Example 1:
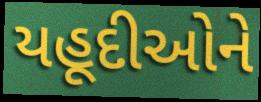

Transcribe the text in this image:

યહૂદીઓને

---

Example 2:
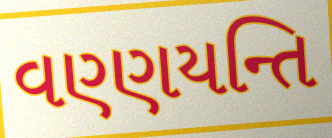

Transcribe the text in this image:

વણ્ણયન્તિ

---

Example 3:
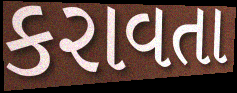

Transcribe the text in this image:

કરાવતા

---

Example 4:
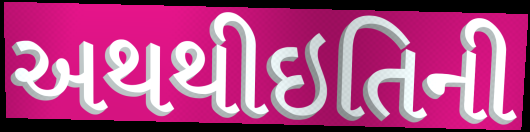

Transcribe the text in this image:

અથથીઇતિની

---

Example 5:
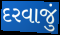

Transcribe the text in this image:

દરવાજું